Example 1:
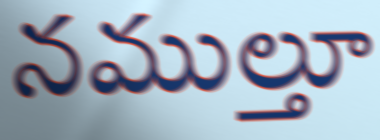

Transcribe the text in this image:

నముల్తూ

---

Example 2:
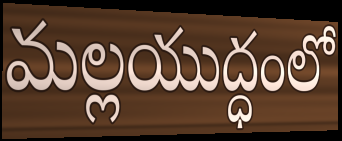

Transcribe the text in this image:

మల్లయుద్ధంలో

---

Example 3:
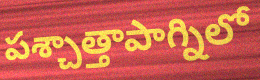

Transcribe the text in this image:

పశ్చాత్తాపాగ్నిలో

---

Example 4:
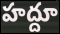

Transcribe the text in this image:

హద్దూ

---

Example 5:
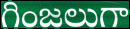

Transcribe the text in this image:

గింజలుగా